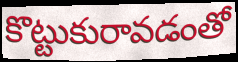
కొట్టుకురావడంతో